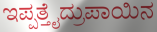
ಇಪ್ಪತ್ತೈದ್ರುಪಾಯಿನ